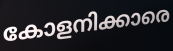
കോളനിക്കാരെ